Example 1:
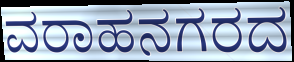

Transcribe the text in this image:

ವರಾಹನಗರದ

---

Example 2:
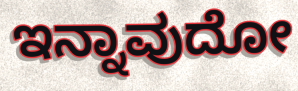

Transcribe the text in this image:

ಇನ್ನಾವುದೋ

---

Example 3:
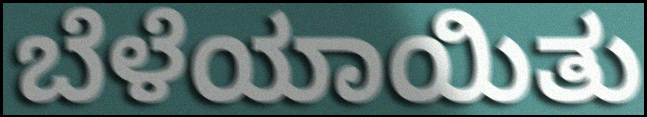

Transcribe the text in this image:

ಬೆಳೆಯಾಯಿತು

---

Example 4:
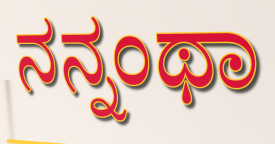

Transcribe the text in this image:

ನನ್ನಂಥಾ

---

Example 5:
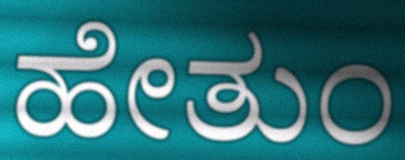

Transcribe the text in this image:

ಹೇತುಂ